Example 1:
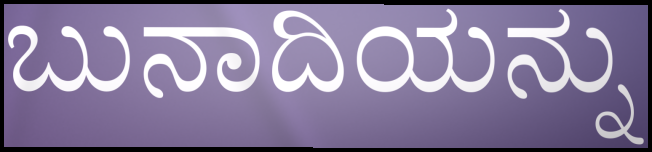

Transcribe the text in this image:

ಬುನಾದಿಯನ್ನು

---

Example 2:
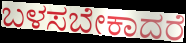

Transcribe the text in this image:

ಬಳಸಬೇಕಾದರೆ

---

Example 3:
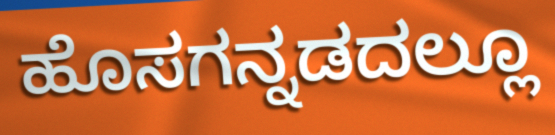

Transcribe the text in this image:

ಹೊಸಗನ್ನಡದಲ್ಲೂ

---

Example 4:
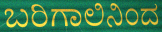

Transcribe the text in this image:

ಬರಿಗಾಲಿನಿಂದ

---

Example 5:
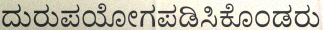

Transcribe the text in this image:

ದುರುಪಯೋಗಪಡಿಸಿಕೊಂಡರು